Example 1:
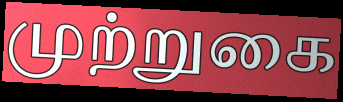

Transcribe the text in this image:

முற்றுகை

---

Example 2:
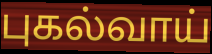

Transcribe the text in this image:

புகல்வாய்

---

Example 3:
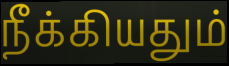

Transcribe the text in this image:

நீக்கியதும்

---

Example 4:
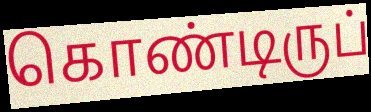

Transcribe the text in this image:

கொண்டிருப்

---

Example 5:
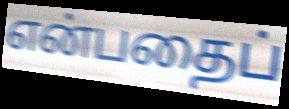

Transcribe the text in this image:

என்பதைப்